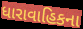
ધારાવાહિકના